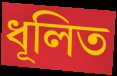
ধূলিত